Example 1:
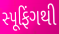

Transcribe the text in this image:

સ્પૂફિંગથી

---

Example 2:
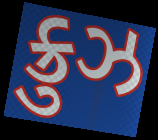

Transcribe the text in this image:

ક્રુઝ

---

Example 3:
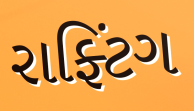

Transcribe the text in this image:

રાફ્ટિંગ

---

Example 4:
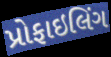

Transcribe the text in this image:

પ્રોફાઇલિંગ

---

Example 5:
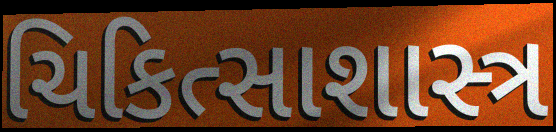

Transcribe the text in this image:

ચિકિત્સાશાસ્ત્ર